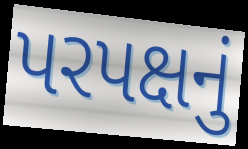
પરપક્ષનું